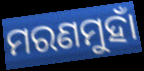
ମରଣମୁହାଁ